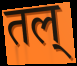
तल्